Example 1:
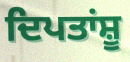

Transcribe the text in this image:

ਦਿਪਤਾਂਸ਼ੂ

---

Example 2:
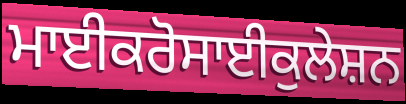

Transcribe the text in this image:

ਮਾਈਕਰੋਸਾਈਕੁਲੇਸ਼ਨ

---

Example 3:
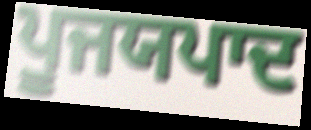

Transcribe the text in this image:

ਪੂਜਯਪਾਦ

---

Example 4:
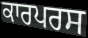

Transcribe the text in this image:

ਕਾਰਪਰਸ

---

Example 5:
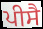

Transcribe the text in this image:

ਪੀਸੈ